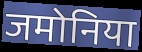
जमोनिया